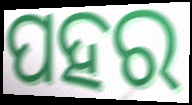
ପହର